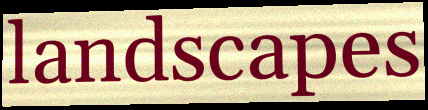
landscapes